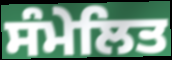
ਸੰਮੇਲਿਤ